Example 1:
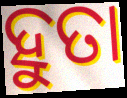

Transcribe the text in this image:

ହୁତା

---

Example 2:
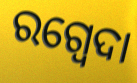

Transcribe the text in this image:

ରଗ୍ବେଦା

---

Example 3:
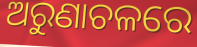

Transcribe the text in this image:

ଅରୁଣାଚଳରେ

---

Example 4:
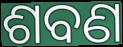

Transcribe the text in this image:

ଶବଣ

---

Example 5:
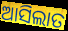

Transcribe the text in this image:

ଆସିଲାତ